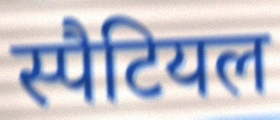
स्पैटियल